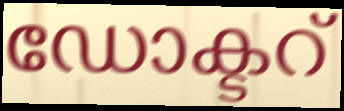
ഡോക്ടറ്